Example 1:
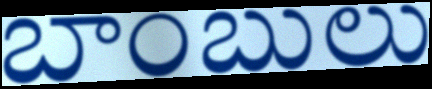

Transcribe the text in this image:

బాంబులు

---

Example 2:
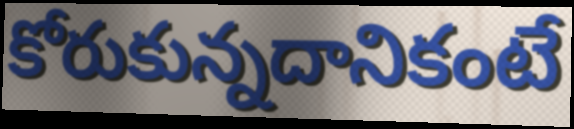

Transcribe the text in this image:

కోరుకున్నదానికంటే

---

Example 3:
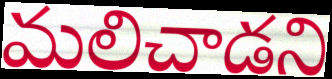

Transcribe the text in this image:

మలిచాడని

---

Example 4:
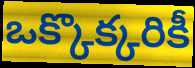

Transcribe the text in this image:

ఒక్కొక్కరికీ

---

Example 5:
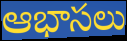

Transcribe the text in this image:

ఆభాసలు